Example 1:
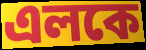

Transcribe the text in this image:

এলকে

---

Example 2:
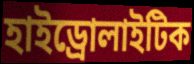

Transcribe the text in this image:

হাইড্রোলাইটিক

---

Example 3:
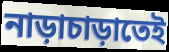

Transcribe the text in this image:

নাড়াচাড়াতেই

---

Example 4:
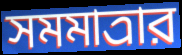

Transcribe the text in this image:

সমমাত্রার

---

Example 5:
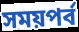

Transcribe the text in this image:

সময়পর্ব